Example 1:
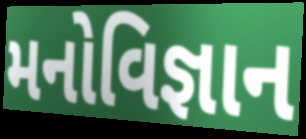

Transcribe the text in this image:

મનોવિજ્ઞાન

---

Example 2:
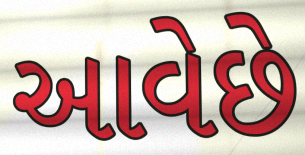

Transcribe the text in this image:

આવેછે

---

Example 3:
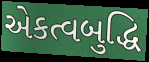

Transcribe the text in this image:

એકત્વબુદ્ધિ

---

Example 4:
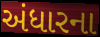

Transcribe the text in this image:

અંધારના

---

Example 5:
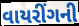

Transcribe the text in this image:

વાયરીંગની